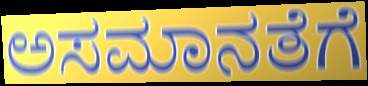
ಅಸಮಾನತೆಗೆ